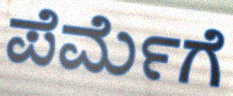
ಪೆರ್ಮೆಗೆ